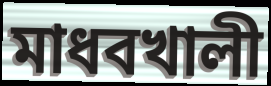
মাধবখালী